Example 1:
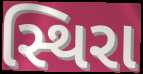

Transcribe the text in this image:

સ્થિરા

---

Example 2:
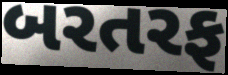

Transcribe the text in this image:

બરતરફ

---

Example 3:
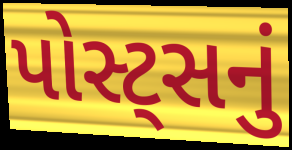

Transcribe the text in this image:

પોસ્ટ્સનું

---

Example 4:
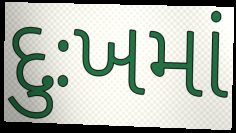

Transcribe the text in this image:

દુઃખમાં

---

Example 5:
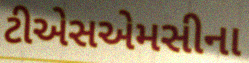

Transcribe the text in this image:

ટીએસએમસીના